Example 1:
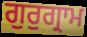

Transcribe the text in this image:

ਗੁਰੁਗ੍ਰਾਮ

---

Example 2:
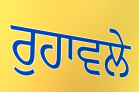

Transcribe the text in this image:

ਰੁਹਾਵਲੇ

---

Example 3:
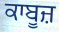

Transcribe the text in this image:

ਕਾਬੂਜ਼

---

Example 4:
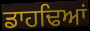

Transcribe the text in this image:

ਡਾਹਢਿਆਂ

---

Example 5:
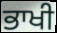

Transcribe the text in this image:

ਭਾਖੀ